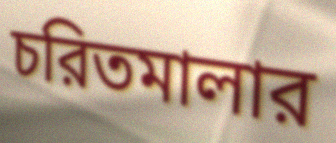
চরিতমালার